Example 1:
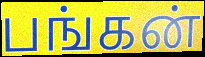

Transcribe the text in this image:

பங்கன்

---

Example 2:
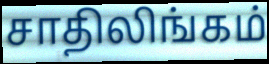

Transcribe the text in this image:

சாதிலிங்கம்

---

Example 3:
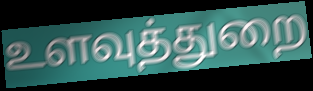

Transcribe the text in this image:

உளவுத்துறை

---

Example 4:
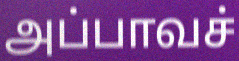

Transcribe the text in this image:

அப்பாவச்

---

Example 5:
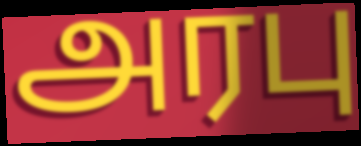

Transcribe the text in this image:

அரபு